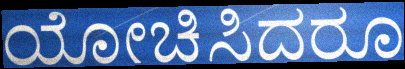
ಯೋಚಿಸಿದರೂ